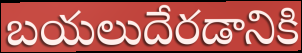
బయలుదేరడానికి